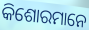
କିଶୋରମାନେ